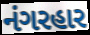
નંગરહાર